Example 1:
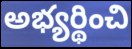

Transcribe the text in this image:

అభ్యర్థించి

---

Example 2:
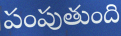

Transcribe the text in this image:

పంపుతుంది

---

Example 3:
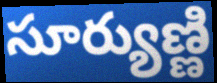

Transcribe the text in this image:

సూర్యుణ్ణి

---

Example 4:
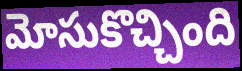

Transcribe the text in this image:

మోసుకొచ్చింది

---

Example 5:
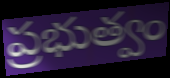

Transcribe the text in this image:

ప్రభుత్వం